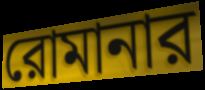
রোমানার